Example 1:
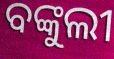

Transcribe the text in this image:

ବଙ୍କୁଲୀ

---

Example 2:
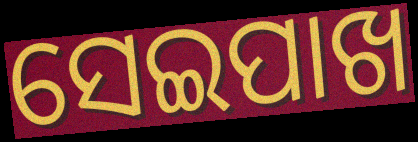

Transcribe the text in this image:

ସେଇପାଖ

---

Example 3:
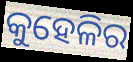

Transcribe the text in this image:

କୁହେଳିର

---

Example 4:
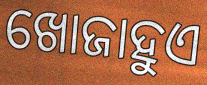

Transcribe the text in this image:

ଖୋଜାହୁଏ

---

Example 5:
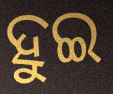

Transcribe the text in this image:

ହୁଇ